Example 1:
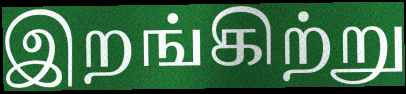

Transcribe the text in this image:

இறங்கிற்று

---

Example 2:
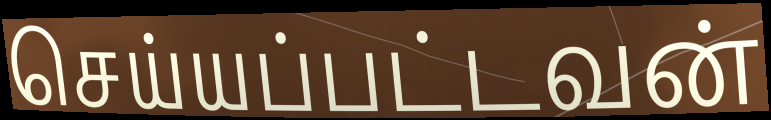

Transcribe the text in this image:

செய்யப்பட்டவன்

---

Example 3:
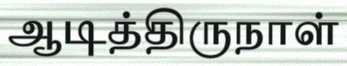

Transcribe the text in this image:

ஆடித்திருநாள்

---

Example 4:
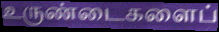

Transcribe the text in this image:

உருண்டைகளைப்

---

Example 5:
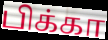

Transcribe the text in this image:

பிக்கா